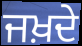
ਜਖ਼ਦੇ